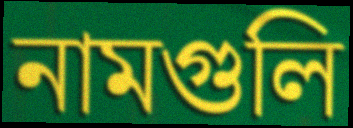
নামগুলি